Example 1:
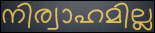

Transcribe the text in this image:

നിര്വാഹമില്ല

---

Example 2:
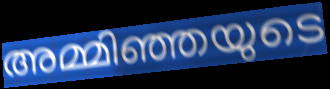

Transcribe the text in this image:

അമ്മിഞ്ഞയുടെ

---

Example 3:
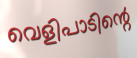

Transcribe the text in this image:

വെളിപാടിന്റെ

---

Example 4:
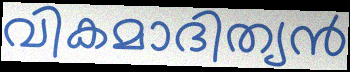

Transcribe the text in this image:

വികമാദിത്യൻ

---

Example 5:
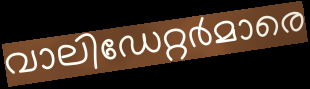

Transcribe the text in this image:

വാലിഡേറ്റർമാരെ